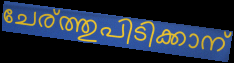
ചേര്ത്തുപിടിക്കാന്